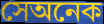
সেঅনেক